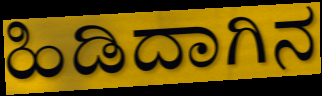
ಹಿಡಿದಾಗಿನ